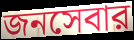
জনসেবার